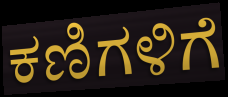
ಕಣಿಗಳಿಗೆ